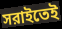
সরাইতেই